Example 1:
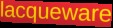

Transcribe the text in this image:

lacqueware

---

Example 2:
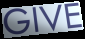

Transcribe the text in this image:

GIVE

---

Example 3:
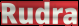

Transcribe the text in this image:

Rudra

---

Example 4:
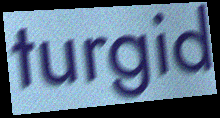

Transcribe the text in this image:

turgid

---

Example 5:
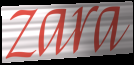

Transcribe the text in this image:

zara